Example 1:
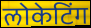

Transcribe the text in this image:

लोकेटिंग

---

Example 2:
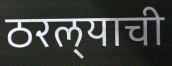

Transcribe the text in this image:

ठरल्याची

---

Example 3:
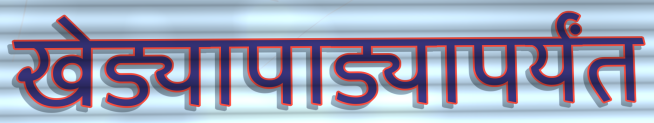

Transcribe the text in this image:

खेड्यापाड्यापर्यंत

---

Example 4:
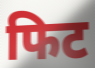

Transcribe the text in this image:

फिट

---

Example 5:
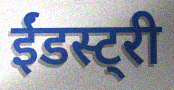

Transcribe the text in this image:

ईंडस्ट्री